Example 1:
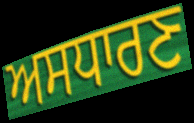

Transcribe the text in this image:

ਅਸਧਾਰਣ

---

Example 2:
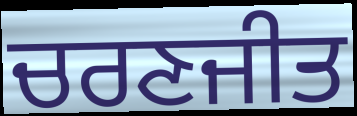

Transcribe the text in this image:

ਚਰਣਜੀਤ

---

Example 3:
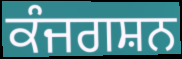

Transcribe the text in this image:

ਕੰਜਗਸ਼ਨ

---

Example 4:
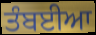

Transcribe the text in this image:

ਤੰਬਈਆ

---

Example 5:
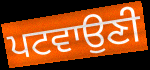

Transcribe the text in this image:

ਪਟਵਾਉਣੀ